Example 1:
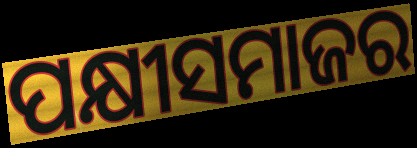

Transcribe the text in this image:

ପକ୍ଷୀସମାଜର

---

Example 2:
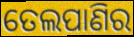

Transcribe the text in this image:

ତେଲପାଣିର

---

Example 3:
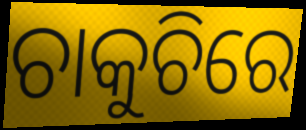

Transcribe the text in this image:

ଚାକୁଚିରେ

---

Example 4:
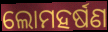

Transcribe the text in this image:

ଲୋମହର୍ଷଣ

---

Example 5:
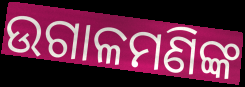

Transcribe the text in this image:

ଉଗାଳମଣିଙ୍କ